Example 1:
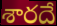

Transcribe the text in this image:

శారదే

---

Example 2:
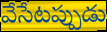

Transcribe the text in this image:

వేసేటప్పుడు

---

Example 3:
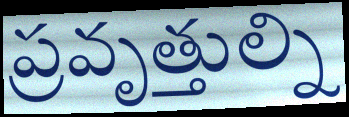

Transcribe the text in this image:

ప్రవృత్తుల్ని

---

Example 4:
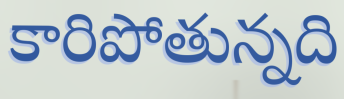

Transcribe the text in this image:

కారిపోతున్నది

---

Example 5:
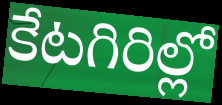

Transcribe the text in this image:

కేటగిరిల్లో